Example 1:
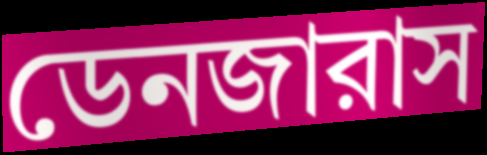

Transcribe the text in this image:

ডেনজারাস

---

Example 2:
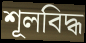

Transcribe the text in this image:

শূলবিদ্ধ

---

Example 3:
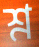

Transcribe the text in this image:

শ্ন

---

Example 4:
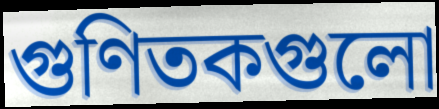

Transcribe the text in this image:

গুণিতকগুলো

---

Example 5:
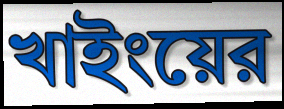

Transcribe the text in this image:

খাইংয়ের